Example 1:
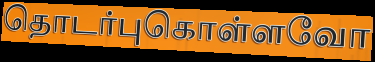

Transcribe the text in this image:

தொடர்புகொள்ளவோ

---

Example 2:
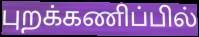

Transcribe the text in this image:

புறக்கணிப்பில்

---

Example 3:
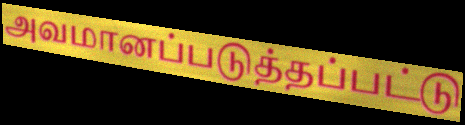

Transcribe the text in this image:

அவமானப்படுத்தப்பட்டு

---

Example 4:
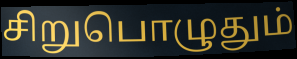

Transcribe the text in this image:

சிறுபொழுதும்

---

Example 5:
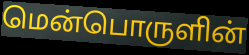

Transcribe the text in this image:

மென்பொருளின்